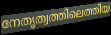
നേതൃത്വത്തിലെത്തിയ